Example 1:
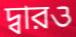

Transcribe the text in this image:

দ্বারও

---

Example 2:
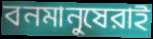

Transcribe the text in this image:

বনমানুষেরাই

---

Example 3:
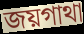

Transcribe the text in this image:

জয়গাথা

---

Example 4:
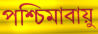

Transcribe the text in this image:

পশ্চিমাবায়ু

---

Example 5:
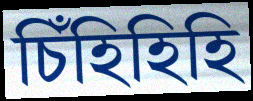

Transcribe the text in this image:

চিঁহিহিহি